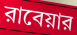
রাবেয়ার